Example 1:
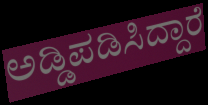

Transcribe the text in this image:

ಅಡ್ಡಿಪಡಿಸಿದ್ದಾರೆ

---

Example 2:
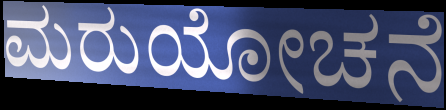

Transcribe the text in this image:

ಮರುಯೋಚನೆ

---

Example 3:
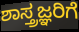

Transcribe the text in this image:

ಶಾಸ್ತ್ರಜ್ಞರಿಗೆ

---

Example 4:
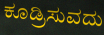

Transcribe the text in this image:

ಕೂಡ್ರಿಸುವದು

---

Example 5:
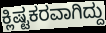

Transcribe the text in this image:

ಕ್ಲಿಷ್ಟಕರವಾಗಿದ್ದು